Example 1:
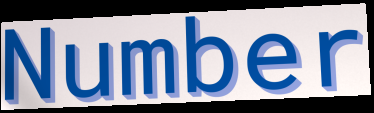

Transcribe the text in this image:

Number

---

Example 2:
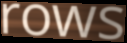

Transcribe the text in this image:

rows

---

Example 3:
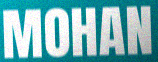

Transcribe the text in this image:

MOHAN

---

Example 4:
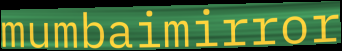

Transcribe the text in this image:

mumbaimirror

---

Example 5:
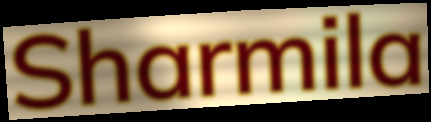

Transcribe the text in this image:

Sharmila